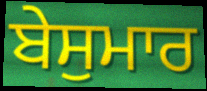
ਬੇਸੁਮਾਰ